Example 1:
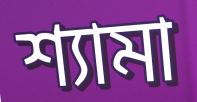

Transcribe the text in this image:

শ্যামা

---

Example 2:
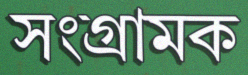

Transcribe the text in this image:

সংগ্ৰামক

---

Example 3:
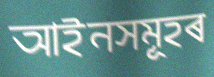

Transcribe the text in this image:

আইনসমূহৰ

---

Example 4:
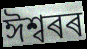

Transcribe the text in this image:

ঈশ্বৰৰ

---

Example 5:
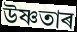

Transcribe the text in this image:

উষ্ণতাৰ